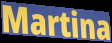
Martina